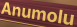
Anumolu